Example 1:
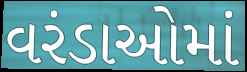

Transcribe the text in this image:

વરંડાઓમાં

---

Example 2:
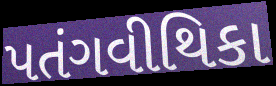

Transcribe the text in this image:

પતંગવીથિકા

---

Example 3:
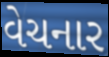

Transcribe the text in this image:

વેચનાર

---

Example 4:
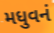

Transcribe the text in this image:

મધુવનં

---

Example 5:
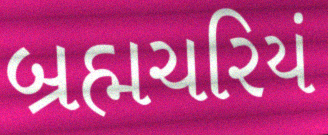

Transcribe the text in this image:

બ્રહ્મચરિયં